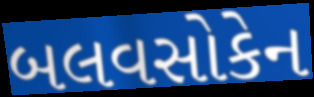
બલવસોકેન